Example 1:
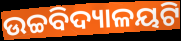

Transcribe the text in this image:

ଉଚ୍ଚବିଦ୍ୟାଳୟଟି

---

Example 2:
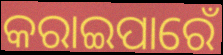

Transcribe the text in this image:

କରାଇପାରେଁ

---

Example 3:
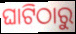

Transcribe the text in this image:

ଘାଟିଠାରୁ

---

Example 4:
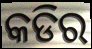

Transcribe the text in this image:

କଡିର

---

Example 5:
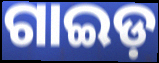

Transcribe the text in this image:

ଗାଇଡ଼